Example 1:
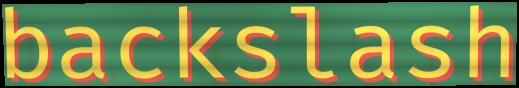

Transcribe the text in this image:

backslash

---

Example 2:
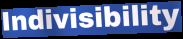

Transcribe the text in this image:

Indivisibility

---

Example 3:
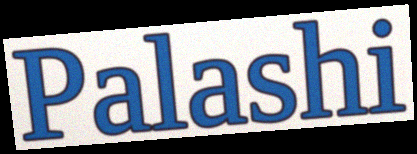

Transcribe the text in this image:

Palashi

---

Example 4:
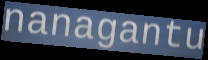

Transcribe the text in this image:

nanagantu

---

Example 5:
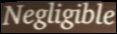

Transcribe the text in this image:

Negligible